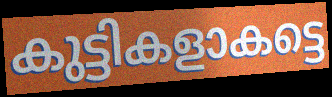
കുട്ടികളാകട്ടെ